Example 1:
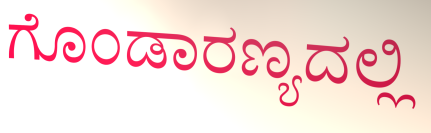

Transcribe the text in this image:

ಗೊಂಡಾರಣ್ಯದಲ್ಲಿ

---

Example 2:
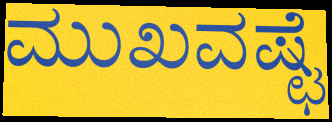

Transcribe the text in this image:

ಮುಖವಷ್ಟೆ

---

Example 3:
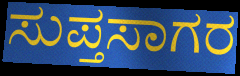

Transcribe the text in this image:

ಸುಪ್ತಸಾಗರ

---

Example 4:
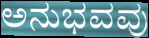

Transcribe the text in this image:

ಅನುಭವವು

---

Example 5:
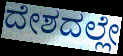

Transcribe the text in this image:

ದೇಶದಲ್ಲೇ